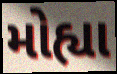
મોહ્યા